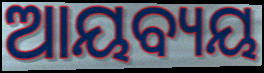
ଆୟବ୍ୟୟ